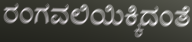
ರಂಗವಲಿಯಿಕ್ಕಿದಂತೆ